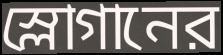
স্লোগানের